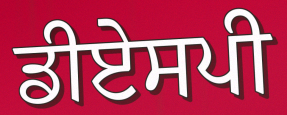
ਡੀਏਸਪੀ